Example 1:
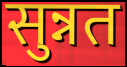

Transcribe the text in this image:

सुन्नत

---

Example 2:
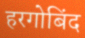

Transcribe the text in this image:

हरगोबिंद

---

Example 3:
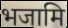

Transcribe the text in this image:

भजामि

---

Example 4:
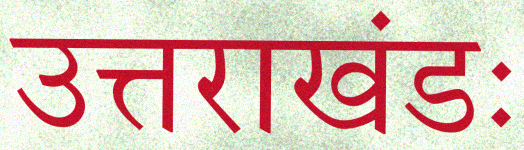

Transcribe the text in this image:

उत्तराखंडः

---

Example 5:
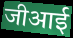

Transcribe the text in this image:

जीआई